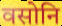
वसोनि